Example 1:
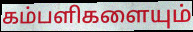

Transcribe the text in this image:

கம்பளிகளையும்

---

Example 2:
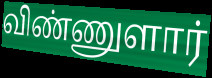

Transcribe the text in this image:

விண்ணுளார்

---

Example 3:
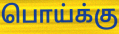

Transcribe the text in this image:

பொய்க்கு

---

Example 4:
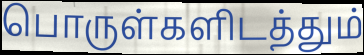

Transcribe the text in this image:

பொருள்களிடத்தும்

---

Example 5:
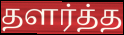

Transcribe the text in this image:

தளர்த்த